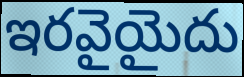
ఇరవైయైదు